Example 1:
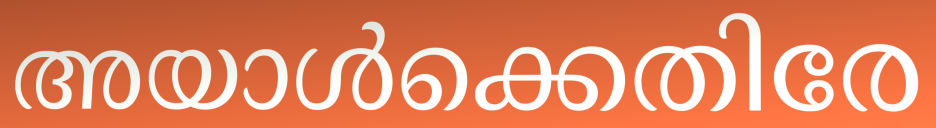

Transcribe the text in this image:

അയാൾക്കെതിരേ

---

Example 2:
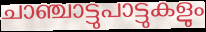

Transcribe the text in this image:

ചാഞ്ചാട്ടുപാട്ടുകളും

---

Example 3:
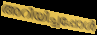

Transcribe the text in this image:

അറിയിച്ചപ്പോൾ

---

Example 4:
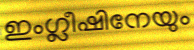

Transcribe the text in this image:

ഇംഗ്ലീഷിനേയും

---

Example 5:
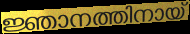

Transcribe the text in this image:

ജ്ഞാനത്തിനായ്